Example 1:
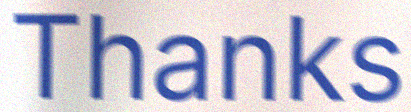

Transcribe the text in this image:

Thanks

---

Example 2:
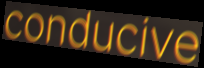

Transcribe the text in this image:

conducive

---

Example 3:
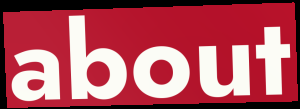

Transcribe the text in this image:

about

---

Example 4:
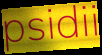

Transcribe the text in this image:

psidii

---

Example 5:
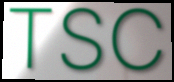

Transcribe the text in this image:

TSC